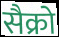
सैक्रो